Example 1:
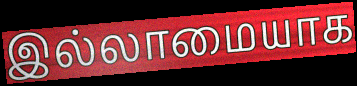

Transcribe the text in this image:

இல்லாமையாக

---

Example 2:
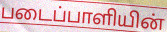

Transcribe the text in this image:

படைப்பாளியின்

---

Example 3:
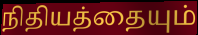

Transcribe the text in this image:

நிதியத்தையும்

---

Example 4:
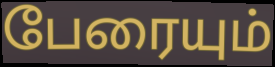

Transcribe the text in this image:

பேரையும்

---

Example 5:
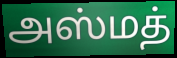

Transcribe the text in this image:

அஸ்மத்